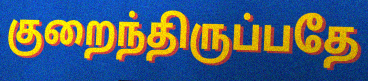
குறைந்திருப்பதே